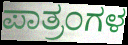
ಪಾತ್ರಂಗಳ